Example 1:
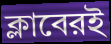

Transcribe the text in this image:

ক্লাবেরই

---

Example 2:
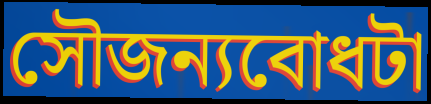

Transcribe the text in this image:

সৌজন্যবোধটা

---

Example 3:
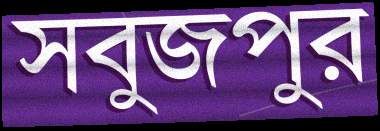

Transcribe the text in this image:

সবুজপুর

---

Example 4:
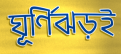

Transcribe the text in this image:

ঘূর্ণিঝড়ই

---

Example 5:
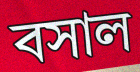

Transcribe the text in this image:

বসাল